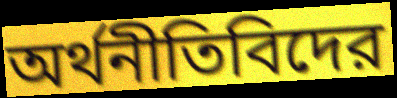
অর্থনীতিবিদের